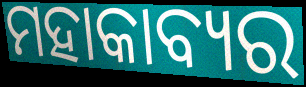
ମହାକାବ୍ୟର